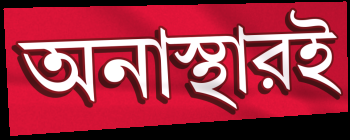
অনাস্থারই